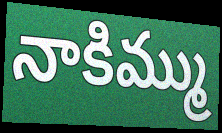
నాకిమ్ము